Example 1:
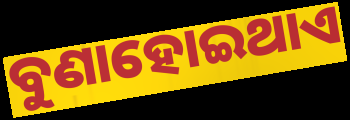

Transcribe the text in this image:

ବୁଣାହୋଇଥାଏ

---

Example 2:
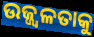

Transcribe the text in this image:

ଉଜ୍ଜ୍ୱଳତାକୁ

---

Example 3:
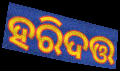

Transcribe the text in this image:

ହରିଦତ୍ତ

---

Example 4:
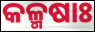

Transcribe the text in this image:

କଳ୍ମଷାଃ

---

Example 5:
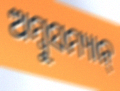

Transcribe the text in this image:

ଅମ୍ବୁସମ୍ୟାନ୍